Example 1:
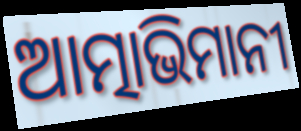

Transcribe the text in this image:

ଆତ୍ମାଭିମାନୀ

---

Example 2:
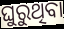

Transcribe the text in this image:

ଘୁରୁଥିବା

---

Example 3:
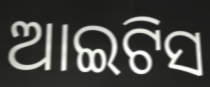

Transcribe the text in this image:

ଆଇଟିସ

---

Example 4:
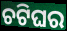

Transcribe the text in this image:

ଚଟିଘର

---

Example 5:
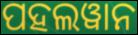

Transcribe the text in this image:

ପହଲୱାନ